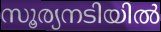
സൂര്യനടിയിൽ